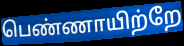
பெண்ணாயிற்றே